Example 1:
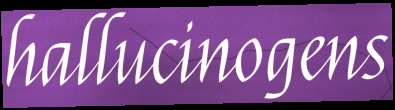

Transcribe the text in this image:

hallucinogens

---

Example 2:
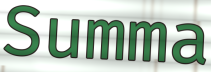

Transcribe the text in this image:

Summa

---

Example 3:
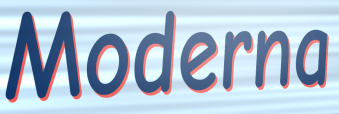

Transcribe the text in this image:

Moderna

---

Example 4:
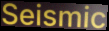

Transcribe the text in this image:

Seismic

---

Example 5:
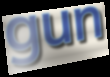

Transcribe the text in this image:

gun